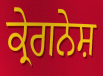
ਕ੍ਰੇਗਨੇਸ਼